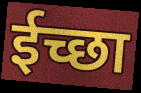
ईच्छा